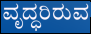
ವೃದ್ಧರಿರುವ